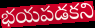
భయపడకని